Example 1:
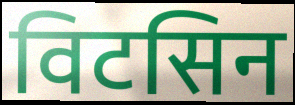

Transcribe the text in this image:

विटसिन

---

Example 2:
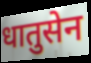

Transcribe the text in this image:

धातुसेन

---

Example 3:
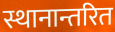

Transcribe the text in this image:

स्थानान्तरित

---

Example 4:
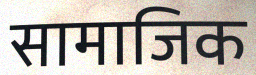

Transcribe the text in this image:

सामाजिक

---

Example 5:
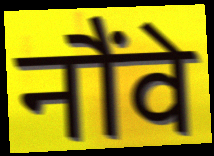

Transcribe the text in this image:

नौंवे